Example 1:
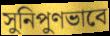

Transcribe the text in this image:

সুনিপুণভাবে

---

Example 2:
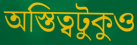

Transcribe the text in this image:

অস্তিত্বটুকুও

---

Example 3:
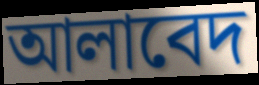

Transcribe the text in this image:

আলাবেদ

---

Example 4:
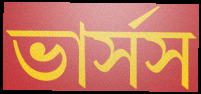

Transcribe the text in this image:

ভার্সস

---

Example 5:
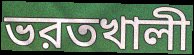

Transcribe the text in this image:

ভরতখালী